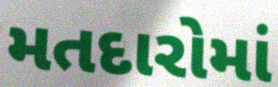
મતદારોમાં